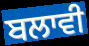
ਬਲਾਵੀ